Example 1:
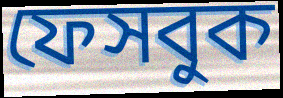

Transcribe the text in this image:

ফেসবুক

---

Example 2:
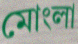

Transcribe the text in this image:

মোংলা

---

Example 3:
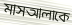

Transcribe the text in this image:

মাসআলাকে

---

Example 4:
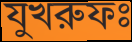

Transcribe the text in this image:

যুখরুফঃ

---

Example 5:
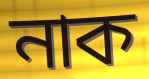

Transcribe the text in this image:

নাক